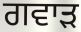
ਗਵਾੜ